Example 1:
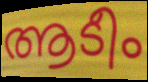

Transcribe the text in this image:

ആടീം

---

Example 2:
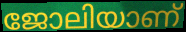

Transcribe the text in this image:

ജോലിയാണ്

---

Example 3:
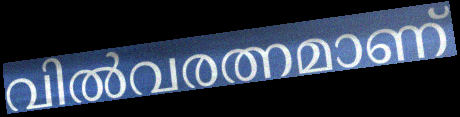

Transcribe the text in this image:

വിൽവരത്നമാണ്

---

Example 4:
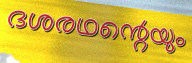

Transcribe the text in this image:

ദശരഥന്റെയും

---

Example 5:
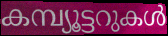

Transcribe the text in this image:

കമ്പ്യൂട്ടറുകൾ